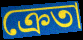
ক্রেতা